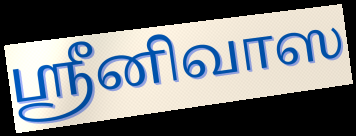
ஸ்ரீனிவாஸ